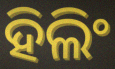
ହିଲିଂ